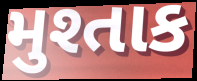
મુશ્તાક